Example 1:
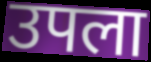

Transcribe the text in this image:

उपला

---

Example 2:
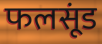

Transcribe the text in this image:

फलसूंड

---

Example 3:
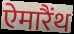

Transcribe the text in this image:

ऐमारैंथ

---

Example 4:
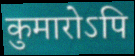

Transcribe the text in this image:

कुमारोऽपि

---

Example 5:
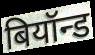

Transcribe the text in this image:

बियॉन्ड